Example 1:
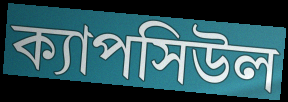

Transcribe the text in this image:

ক্যাপসিউল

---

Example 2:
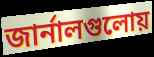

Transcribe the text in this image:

জার্নালগুলোয়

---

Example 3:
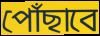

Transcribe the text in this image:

পোঁছাবে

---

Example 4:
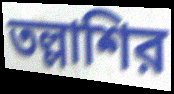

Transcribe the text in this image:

তল্লাশির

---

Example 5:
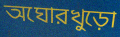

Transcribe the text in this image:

অঘোরখুড়ো